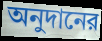
অনুদানের